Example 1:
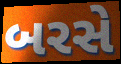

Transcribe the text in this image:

બરસે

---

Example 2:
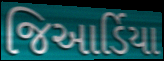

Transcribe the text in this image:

જિઆર્ડિયા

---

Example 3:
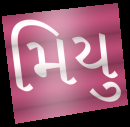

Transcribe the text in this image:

મિયુ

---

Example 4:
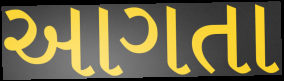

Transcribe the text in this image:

આગતા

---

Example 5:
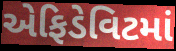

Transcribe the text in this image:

એફિડેવિટમાં